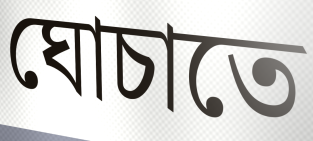
ঘোচাতে